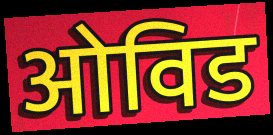
ओविड